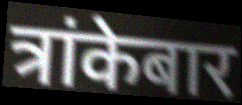
त्रांकेबार